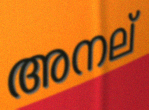
അനല്